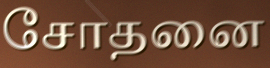
சோதனை